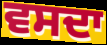
ਵਸਦਾ